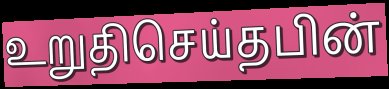
உறுதிசெய்தபின்